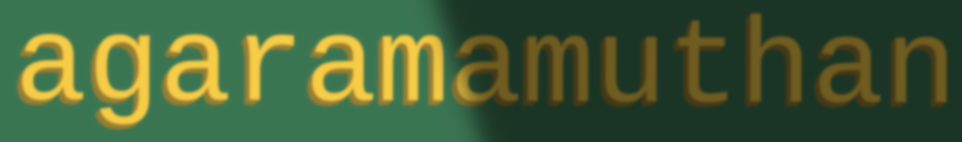
agaramamuthan